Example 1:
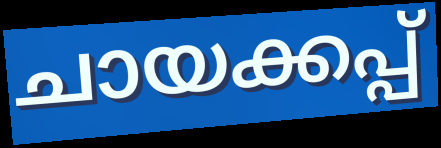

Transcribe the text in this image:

ചായക്കപ്പ്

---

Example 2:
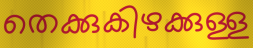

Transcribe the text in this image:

തെക്കുകിഴക്കുള്ള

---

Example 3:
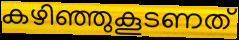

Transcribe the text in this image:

കഴിഞ്ഞുകൂടണത്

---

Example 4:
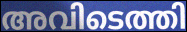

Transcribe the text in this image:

അവിടെത്തി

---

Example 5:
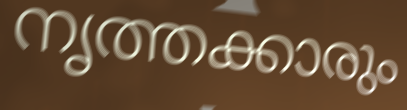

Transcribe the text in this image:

നൃത്തക്കാരും